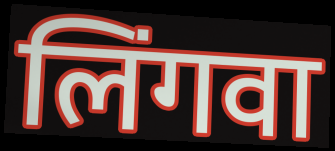
लिंगवा